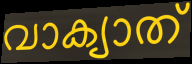
വാക്യാത്